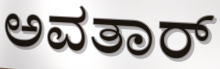
ಅವತಾರ್